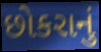
છોકરાનું